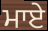
ਮਾਏ